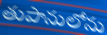
తుపానులోను